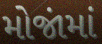
મોજાંમાં